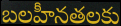
బలహీనతలకు